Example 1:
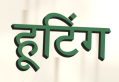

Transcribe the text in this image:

हूटिंग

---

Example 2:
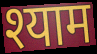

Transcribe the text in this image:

श्याम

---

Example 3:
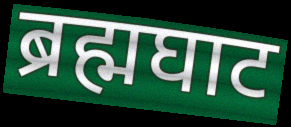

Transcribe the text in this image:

ब्रह्मघाट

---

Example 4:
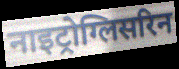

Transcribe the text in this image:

नाइट्रोग्लिसरिन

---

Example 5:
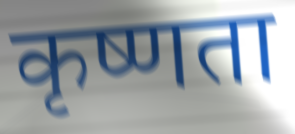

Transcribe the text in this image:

कृष्णता